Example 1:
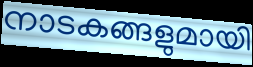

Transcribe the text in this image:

നാടകങ്ങളുമായി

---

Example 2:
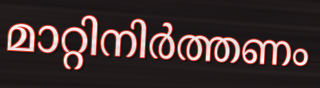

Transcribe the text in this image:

മാറ്റിനിർത്തണം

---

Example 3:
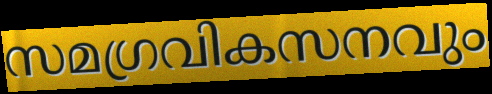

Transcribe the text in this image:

സമഗ്രവികസനവും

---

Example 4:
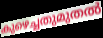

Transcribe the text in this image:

കുഴെച്ചതുമുതൽ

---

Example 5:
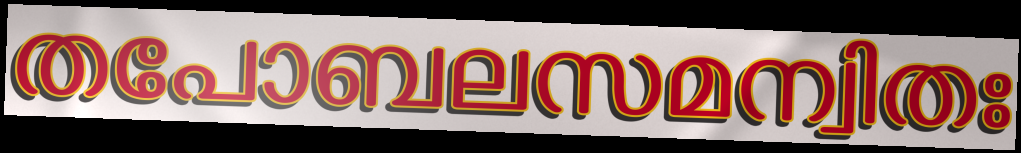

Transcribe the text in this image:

തപോബലസമന്വിതഃ